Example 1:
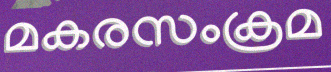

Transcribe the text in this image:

മകരസംക്രമ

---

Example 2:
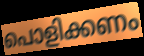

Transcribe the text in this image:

പൊളിക്കണം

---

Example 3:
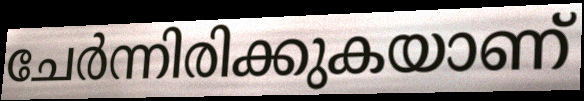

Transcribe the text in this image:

ചേർന്നിരിക്കുകയാണ്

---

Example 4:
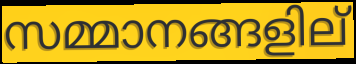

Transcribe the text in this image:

സമ്മാനങ്ങളില്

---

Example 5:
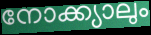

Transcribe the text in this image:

നോക്ക്യാലും